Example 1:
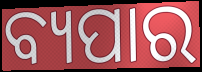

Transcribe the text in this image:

ବ୍ୟପାର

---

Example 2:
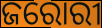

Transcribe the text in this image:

ଜରୋରୀ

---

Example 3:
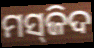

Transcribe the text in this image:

ମସ୍‌ଜିଦ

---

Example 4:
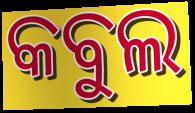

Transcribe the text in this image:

କବୁଲ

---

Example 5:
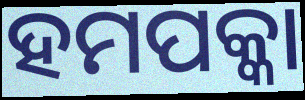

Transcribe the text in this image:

ହମପକ୍କା